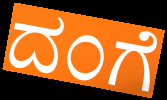
ದಂಗೆ